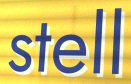
stell